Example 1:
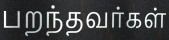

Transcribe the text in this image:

பறந்தவர்கள்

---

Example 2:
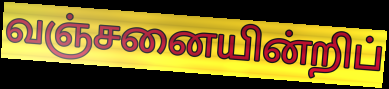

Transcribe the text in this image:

வஞ்சனையின்றிப்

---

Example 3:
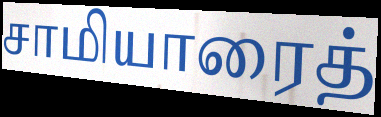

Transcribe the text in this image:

சாமியாரைத்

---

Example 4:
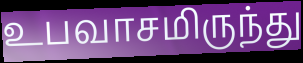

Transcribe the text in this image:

உபவாசமிருந்து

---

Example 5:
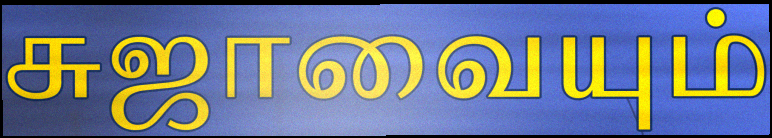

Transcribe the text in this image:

சுஜாவையும்